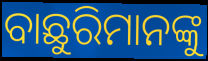
ବାଛୁରିମାନଙ୍କୁ